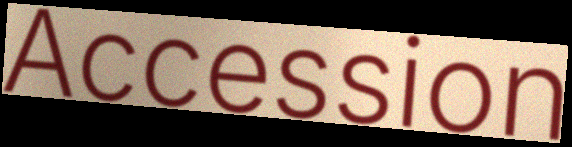
Accession